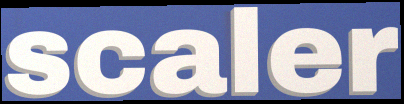
scaler